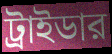
ট্রাইডার